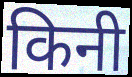
किनी